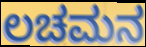
ಲಚಮನ